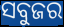
ସବୁଜର